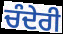
ਚੰਦੇਰੀ